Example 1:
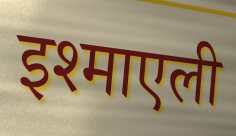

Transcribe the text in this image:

इश्माएली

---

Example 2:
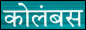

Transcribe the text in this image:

कोलंबस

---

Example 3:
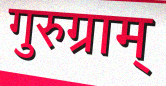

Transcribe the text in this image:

गुरुग्राम्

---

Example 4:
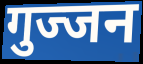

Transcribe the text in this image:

गुज्जन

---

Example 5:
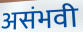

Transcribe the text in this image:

असंभवी